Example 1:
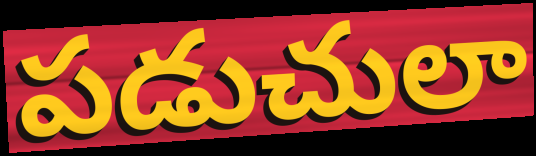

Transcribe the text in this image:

పడుచులా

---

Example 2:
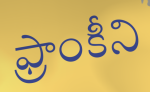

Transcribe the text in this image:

ఫ్రాంకీని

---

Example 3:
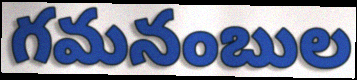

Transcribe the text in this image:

గమనంబుల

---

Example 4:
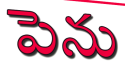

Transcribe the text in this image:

పెను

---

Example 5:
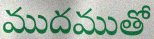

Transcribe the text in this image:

ముదముతో